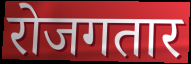
रोजगतार